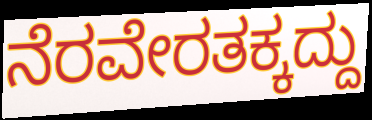
ನೆರವೇರತಕ್ಕದ್ದು